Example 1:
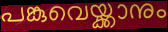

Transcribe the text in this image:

പങ്കുവെയ്ക്കാനും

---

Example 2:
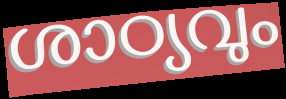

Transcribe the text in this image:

ശാഠ്യവും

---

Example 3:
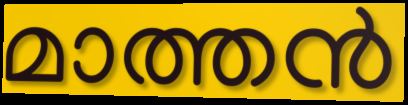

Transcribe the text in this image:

മാത്തൻ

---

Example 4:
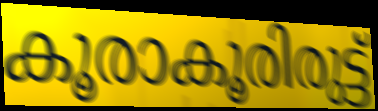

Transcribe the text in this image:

കൂരാകൂരിരുട്ട്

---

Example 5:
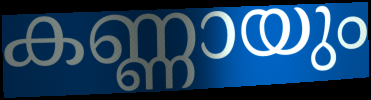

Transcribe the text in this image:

കണ്ണായും